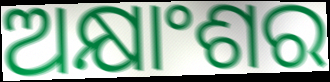
ଅକ୍ଷାଂଶର